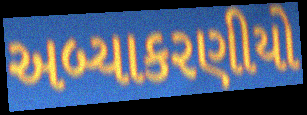
અબ્યાકરણીયો